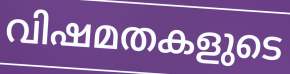
വിഷമതകളുടെ